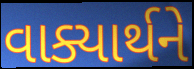
વાક્યાર્થને